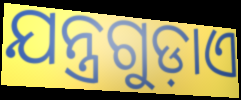
ଯନ୍ତ୍ରଗୁଡ଼ାଏ